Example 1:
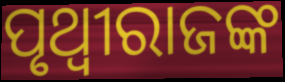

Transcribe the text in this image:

ପୃଥ୍ଵୀରାଜଙ୍କ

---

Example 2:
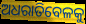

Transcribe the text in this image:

ଅଧରାତିବେଳକୁ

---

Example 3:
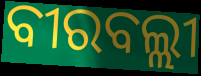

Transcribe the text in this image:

ବୀରବଲ୍ଲୀ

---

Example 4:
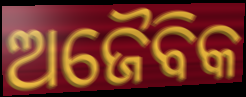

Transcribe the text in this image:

ଅଜୈବିକ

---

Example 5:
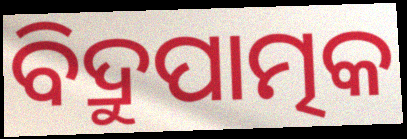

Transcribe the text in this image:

ବିଦ୍ରୁପାତ୍ମକ